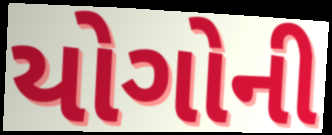
યોગોની